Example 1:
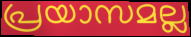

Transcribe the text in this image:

പ്രയാസമല്ല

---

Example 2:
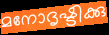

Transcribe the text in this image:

മനോദൃഷ്ടിക്കു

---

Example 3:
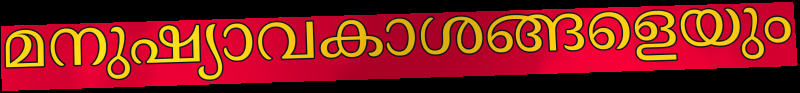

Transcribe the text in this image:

മനുഷ്യാവകാശങ്ങളെയും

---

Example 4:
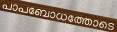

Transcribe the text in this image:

പാപബോധത്തോടെ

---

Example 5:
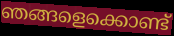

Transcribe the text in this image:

ഞങ്ങളെക്കൊണ്ട്